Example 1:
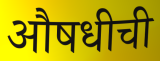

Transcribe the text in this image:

औषधीची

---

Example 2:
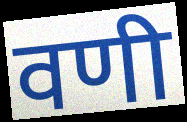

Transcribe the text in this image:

वणी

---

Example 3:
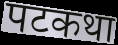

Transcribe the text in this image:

पटकथा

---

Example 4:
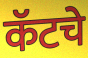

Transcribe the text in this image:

कॅटचे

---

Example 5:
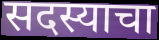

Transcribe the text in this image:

सदस्याचा